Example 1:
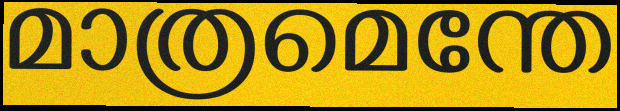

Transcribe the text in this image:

മാത്രമെന്തേ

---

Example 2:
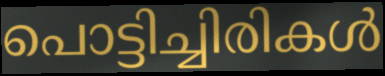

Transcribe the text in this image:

പൊട്ടിച്ചിരികൾ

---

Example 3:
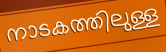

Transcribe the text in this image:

നാടകത്തിലുള്ള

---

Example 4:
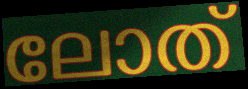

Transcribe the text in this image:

ലോത്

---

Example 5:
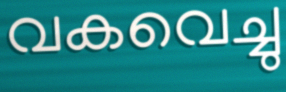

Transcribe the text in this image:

വകവെച്ചു